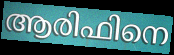
ആരിഫിനെ